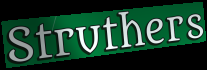
Struthers